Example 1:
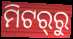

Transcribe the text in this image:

ମିଟର୍‍ରୁ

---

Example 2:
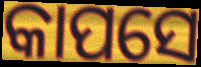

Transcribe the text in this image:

କାପସେ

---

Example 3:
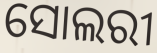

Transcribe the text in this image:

ସୋଲରୀ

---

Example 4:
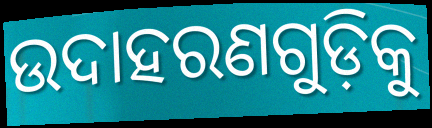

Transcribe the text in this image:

ଉଦାହରଣଗୁଡ଼ିକୁ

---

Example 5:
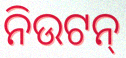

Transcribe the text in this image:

ନିଉଟନ୍